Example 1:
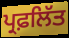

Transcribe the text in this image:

ਪ੍ਰਫ਼ਲਿੱਤ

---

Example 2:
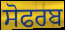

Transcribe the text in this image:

ਸੋਫਰਬ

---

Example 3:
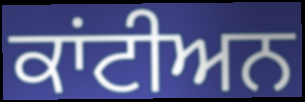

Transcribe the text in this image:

ਕਾਂਟੀਅਨ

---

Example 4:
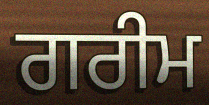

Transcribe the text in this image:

ਗਰੀਮ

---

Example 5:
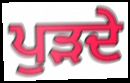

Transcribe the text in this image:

ਪੁੜਦੇ